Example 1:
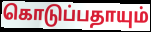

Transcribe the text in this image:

கொடுப்பதாயும்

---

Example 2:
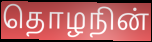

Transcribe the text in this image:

தொழநின்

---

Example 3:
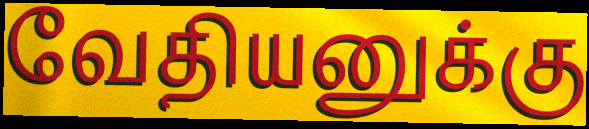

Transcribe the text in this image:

வேதியனுக்கு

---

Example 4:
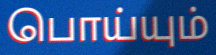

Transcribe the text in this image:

பொய்யும்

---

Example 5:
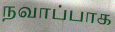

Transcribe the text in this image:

நவாப்பாக